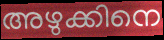
അഴുക്കിനെ